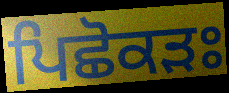
ਪਿਛੋਕੜਃ